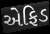
એફિડ